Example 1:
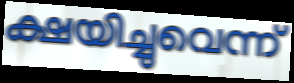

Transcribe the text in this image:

ക്ഷയിച്ചുവെന്ന്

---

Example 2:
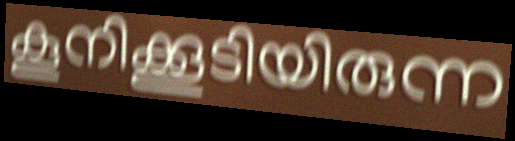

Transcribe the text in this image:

കൂനിക്കൂടിയിരുന്ന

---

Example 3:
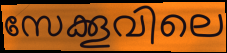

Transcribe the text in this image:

സേക്കൂവിലെ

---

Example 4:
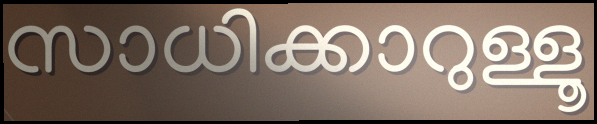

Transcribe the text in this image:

സാധിക്കാറുള്ളൂ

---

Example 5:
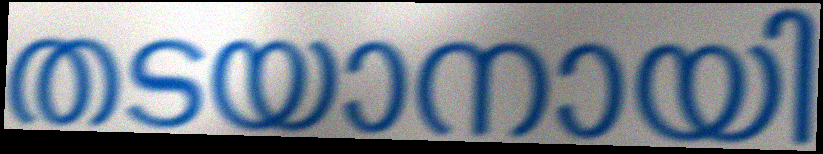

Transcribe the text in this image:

തടയാനായി